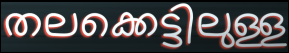
തലക്കെട്ടിലുള്ള